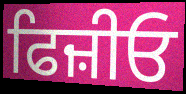
ਫਿਜ਼ੀਓ